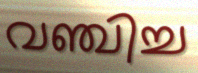
വഞ്ചിച്ച